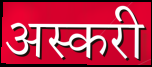
अस्करी